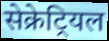
सेक्रेट्रियल